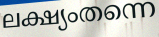
ലക്ഷ്യംതന്നെ